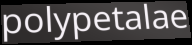
polypetalae